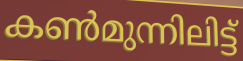
കൺമുന്നിലിട്ട്